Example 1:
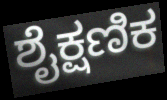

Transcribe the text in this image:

ಶೈಕ್ಷಣಿಕ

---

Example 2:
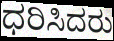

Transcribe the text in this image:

ಧರಿಸಿದರು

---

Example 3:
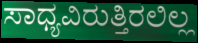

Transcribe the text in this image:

ಸಾಧ್ಯವಿರುತ್ತಿರಲಿಲ್ಲ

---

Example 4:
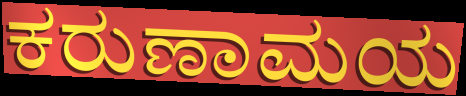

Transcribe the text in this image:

ಕರುಣಾಮಯ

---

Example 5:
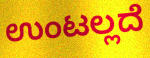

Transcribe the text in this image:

ಉಂಟಲ್ಲದೆ